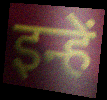
इन्हें